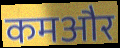
कमऔर